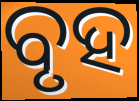
ବୃହ